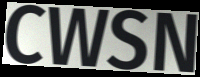
CWSN